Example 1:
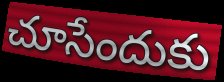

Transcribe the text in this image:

చూసేందుకు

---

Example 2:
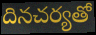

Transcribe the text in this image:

దినచర్యతో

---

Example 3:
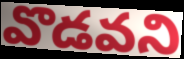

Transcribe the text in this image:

వొడవని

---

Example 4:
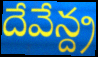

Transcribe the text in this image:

దేవేన్ద్ర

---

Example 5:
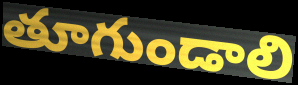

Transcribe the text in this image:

తూగుండాలి